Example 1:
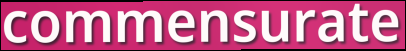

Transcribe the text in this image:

commensurate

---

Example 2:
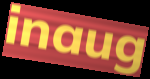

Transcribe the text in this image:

inaug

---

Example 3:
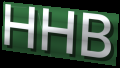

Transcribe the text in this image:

HHB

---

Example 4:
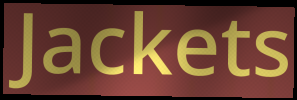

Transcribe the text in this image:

Jackets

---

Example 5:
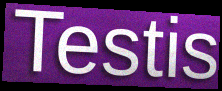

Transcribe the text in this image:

Testis